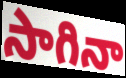
సాగినా